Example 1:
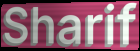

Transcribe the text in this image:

Sharif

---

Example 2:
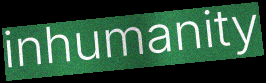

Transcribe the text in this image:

inhumanity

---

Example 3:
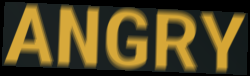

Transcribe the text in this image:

ANGRY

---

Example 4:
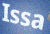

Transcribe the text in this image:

Issa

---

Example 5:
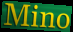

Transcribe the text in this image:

Mino